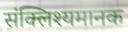
संक्लिश्यमानक